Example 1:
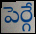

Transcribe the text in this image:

పెర్గే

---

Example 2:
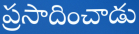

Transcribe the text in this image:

ప్రసాదించాడు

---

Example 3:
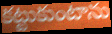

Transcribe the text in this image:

కట్టుకుంటాను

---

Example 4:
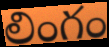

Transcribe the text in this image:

లింగం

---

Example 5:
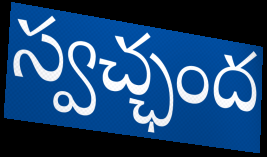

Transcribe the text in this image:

స్వచ్ఛంద